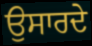
ਉਸਾਰਦੇ